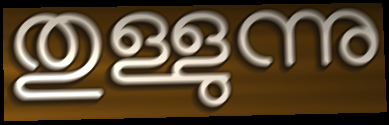
തുള്ളുന്നു